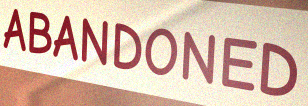
ABANDONED